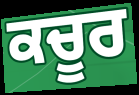
ਕਚੂਰ